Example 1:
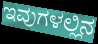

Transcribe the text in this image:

ಇವುಗಳಲ್ಲಿನ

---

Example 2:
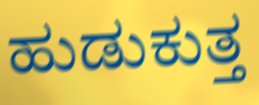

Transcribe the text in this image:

ಹುಡುಕುತ್ತ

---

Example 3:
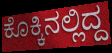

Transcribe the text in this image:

ಕೊಕ್ಕಿನಲ್ಲಿದ್ದ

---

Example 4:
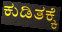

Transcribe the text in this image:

ಕುಡಿತಕ್ಕೆ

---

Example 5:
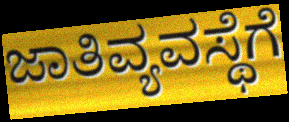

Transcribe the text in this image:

ಜಾತಿವ್ಯವಸ್ಥೆಗೆ